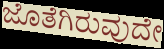
ಜೊತೆಗಿರುವುದೇ